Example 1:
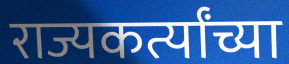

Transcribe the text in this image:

राज्यकर्त्यांच्या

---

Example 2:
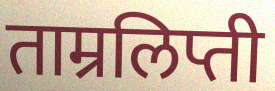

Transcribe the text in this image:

ताम्रलिप्ती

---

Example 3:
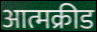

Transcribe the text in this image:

आत्मक्रीड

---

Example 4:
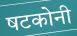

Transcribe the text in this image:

षटकोनी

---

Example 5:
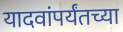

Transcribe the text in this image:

यादवांपर्यंतच्या